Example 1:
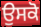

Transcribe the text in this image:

ਉਸਕੋ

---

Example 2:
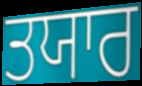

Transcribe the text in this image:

ਤਯਾਰ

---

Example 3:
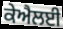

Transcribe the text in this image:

ਕੇਐਲਈ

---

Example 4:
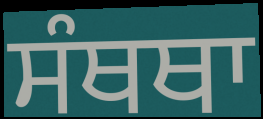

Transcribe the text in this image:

ਸੰਥਥਾ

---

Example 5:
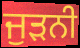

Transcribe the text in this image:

ਜੁੜਨੀ